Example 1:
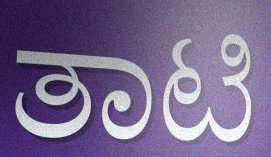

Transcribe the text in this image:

ತಾಟಿ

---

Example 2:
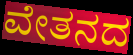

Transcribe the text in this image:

ವೇತನದ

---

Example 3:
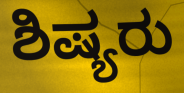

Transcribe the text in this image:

ಶಿಷ್ಯರು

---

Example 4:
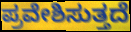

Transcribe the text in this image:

ಪ್ರವೇಶಿಸುತ್ತದೆ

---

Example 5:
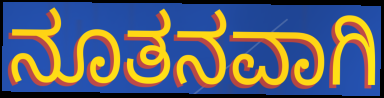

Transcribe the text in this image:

ನೂತನವಾಗಿ